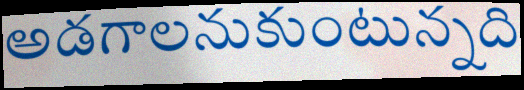
అడగాలనుకుంటున్నది